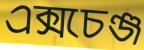
এক্সচেঞ্জ